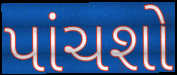
પાંચશો